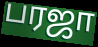
பரஜா